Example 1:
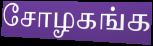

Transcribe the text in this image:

சோழகங்க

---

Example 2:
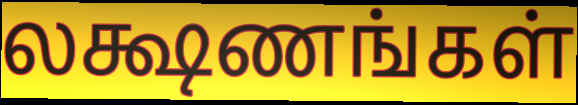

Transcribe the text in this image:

லக்ஷணங்கள்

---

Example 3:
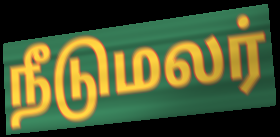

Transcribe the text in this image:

நீடுமலர்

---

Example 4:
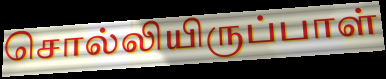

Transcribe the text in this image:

சொல்லியிருப்பாள்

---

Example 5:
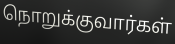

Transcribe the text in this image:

நொறுக்குவார்கள்